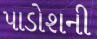
પાડોશની